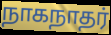
நாகநாதர்